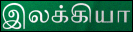
இலக்கியா